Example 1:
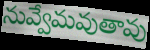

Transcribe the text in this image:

నువ్వేమవుతావు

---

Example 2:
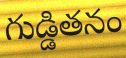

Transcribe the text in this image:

గుడ్డితనం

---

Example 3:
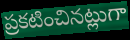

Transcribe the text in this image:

ప్రకటించినట్లుగా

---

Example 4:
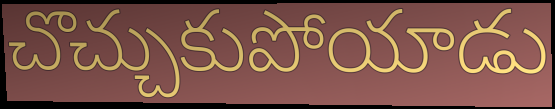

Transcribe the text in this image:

చొచ్చుకుపోయాడు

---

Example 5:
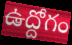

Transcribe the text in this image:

ఉద్దోగం